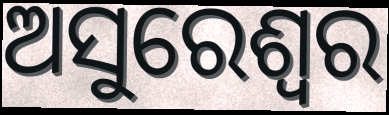
ଅସୁରେଶ୍ଵର